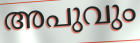
അപുവും